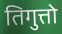
तिगुत्तो